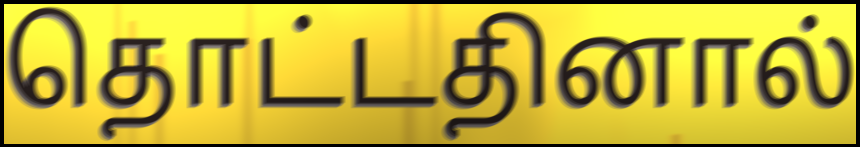
தொட்டதினால்